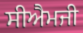
ਸੀਐਮਜੀ